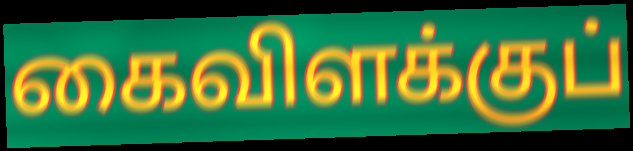
கைவிளக்குப்